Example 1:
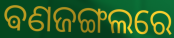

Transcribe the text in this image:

ଵଣଜଙ୍ଗଲରେ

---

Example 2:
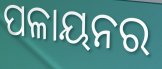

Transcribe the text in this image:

ପଳାୟନର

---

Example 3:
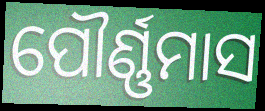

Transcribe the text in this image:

ପୌର୍ଣ୍ଣମାସ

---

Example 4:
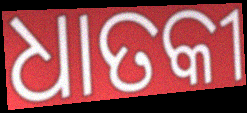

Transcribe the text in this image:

ଧାତକୀ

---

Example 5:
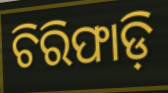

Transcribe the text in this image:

ଚିରିଫାଡ଼ି